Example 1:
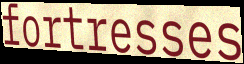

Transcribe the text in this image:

fortresses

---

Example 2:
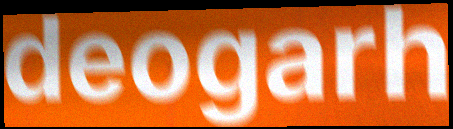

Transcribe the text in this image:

deogarh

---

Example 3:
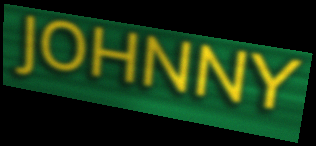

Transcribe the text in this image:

JOHNNY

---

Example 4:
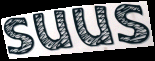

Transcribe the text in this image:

suus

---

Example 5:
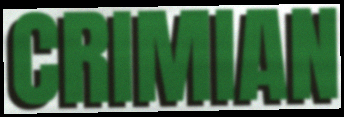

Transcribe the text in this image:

CRIMIAN